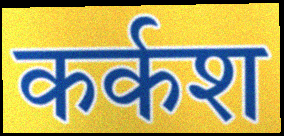
कर्कश